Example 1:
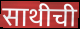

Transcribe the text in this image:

साथीची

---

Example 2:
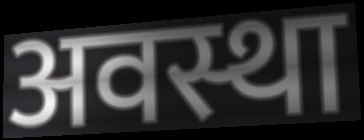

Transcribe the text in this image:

अवस्था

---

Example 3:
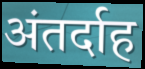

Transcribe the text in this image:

अंतर्दाह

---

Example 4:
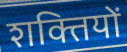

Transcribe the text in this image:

शक्तियों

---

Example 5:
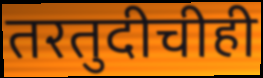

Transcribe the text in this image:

तरतुदीचीही